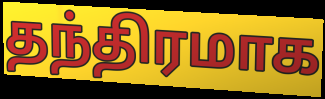
தந்திரமாக